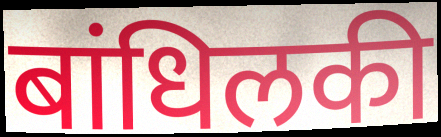
बांधिलकी